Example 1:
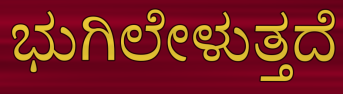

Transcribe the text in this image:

ಭುಗಿಲೇಳುತ್ತದೆ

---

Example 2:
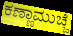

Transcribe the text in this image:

ಕಣ್ಣಾಮುಚ್ಚೆ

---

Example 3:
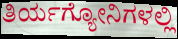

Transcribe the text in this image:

ತಿರ್ಯಗ್ಯೋನಿಗಳಲ್ಲಿ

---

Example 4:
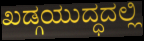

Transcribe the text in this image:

ಖಡ್ಗಯುದ್ಧದಲ್ಲಿ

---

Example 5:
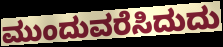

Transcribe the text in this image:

ಮುಂದುವರೆಸಿದುದು